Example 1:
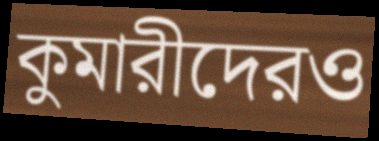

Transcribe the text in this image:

কুমারীদেরও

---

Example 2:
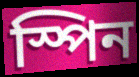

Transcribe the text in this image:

স্পিন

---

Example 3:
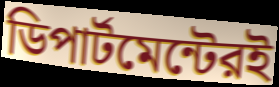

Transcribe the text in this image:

ডিপার্টমেন্টেরই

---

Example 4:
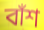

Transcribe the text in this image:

বাঁশ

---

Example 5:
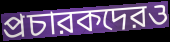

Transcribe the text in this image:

প্রচারকদেরও